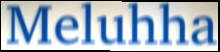
Meluhha